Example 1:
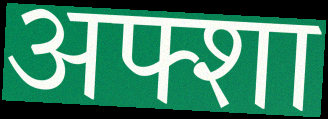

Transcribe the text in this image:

अफ्शा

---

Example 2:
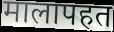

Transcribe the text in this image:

मालापहत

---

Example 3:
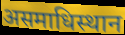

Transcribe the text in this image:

असमाधिस्थान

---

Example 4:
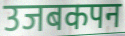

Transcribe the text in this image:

उजबकपन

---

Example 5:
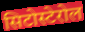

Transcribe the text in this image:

सिटोस्टेरोल